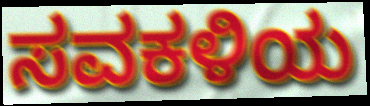
ಸವಕಳಿಯ